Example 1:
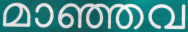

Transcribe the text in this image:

മാഞ്ഞവ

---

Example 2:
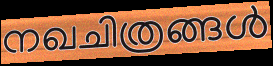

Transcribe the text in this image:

നഖചിത്രങ്ങൾ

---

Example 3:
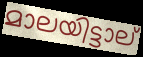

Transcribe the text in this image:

മാലയിട്ടാല്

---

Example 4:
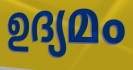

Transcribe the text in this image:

ഉദ്യമം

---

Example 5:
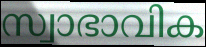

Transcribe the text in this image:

സ്വാഭാവിക